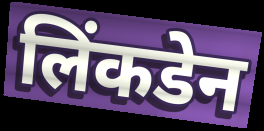
लिंकडेन